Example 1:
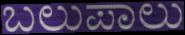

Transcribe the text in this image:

ಬಲುಪಾಲು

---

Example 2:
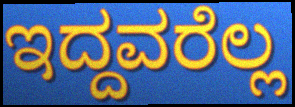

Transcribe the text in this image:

ಇದ್ದವರೆಲ್ಲ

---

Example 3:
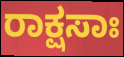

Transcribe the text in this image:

ರಾಕ್ಷಸಾಃ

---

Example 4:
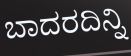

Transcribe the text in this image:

ಬಾದರದಿನ್ನಿ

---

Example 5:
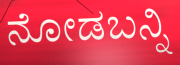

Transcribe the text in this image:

ನೋಡಬನ್ನಿ